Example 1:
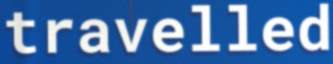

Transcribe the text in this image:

travelled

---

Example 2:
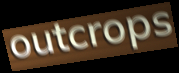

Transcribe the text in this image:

outcrops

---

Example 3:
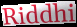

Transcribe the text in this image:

Riddhi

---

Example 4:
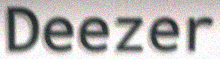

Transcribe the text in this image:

Deezer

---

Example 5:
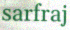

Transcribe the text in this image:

sarfraj